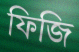
ফিজি